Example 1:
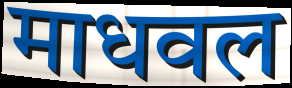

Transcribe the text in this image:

माधवल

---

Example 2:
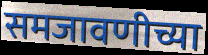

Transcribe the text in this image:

समजावणीच्या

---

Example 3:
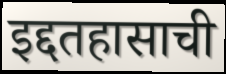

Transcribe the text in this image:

इद्दतहासाची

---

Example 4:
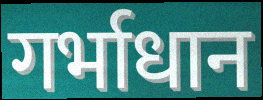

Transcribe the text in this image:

गर्भाधान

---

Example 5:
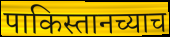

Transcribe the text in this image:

पाकिस्तानच्याच